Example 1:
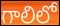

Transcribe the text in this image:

గాలిలో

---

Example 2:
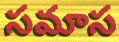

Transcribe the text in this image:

సమాస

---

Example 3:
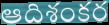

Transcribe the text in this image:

ఆదిశంకర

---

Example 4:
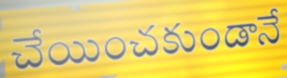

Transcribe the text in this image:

చేయించకుండానే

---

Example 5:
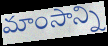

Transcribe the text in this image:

మాంసాన్ని